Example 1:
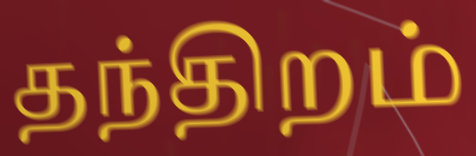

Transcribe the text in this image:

தந்திறம்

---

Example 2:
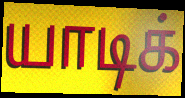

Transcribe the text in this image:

யாடிக்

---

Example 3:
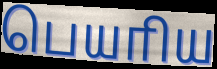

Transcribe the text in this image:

பெயரிய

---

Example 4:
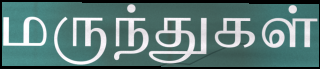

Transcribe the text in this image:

மருந்துகள்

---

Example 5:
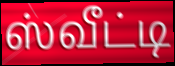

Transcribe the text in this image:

ஸ்வீட்டி